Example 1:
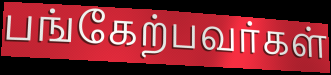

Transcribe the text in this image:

பங்கேற்பவர்கள்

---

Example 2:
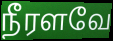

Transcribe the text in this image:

நீரளவே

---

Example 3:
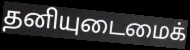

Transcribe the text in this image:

தனியுடைமைக்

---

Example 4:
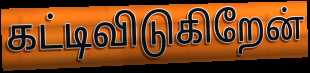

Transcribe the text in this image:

கட்டிவிடுகிறேன்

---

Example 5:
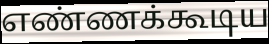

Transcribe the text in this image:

எண்ணக்கூடிய